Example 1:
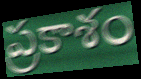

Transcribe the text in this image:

ప్రకాశం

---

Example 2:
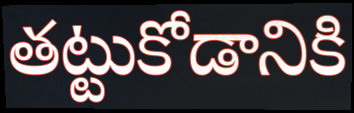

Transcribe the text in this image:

తట్టుకోడానికి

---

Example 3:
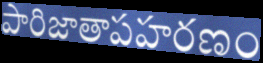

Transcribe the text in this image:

పారిజాతాపహరణం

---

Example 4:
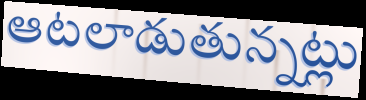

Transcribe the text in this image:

ఆటలాడుతున్నట్లు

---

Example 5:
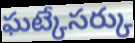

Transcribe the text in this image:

ఘట్కేసర్కు